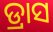
ଡ୍ରାସ